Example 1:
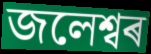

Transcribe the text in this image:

জলেশ্বৰ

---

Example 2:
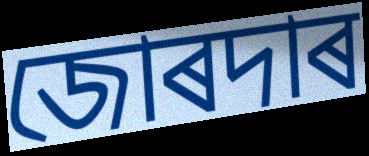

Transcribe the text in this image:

জোৰদাৰ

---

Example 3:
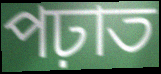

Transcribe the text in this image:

পঢ়াত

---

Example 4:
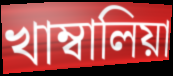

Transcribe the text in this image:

খাম্বালিয়া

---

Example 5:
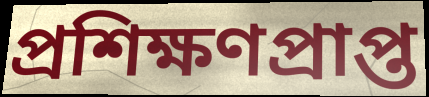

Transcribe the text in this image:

প্ৰশিক্ষণপ্ৰাপ্ত